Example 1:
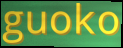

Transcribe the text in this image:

guoko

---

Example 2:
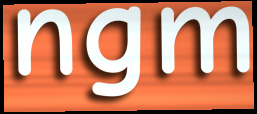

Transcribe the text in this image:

ngm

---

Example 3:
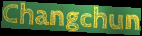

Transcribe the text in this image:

Changchun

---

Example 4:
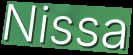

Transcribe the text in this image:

Nissa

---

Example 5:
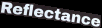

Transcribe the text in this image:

Reflectance